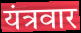
यंत्रवार